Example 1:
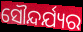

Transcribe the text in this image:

ସୌନ୍ଦର୍ଯ୍ୟର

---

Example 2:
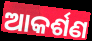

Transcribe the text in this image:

ଆକର୍ଶଣ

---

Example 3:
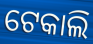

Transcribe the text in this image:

ଟେକାଲି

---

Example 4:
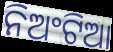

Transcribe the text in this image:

ନିଅଂଟିଆ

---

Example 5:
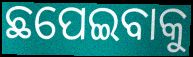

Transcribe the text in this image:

ଛପେଇବାକୁ